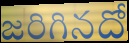
జరిగినదో